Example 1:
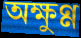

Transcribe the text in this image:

অক্ষুণ্ণ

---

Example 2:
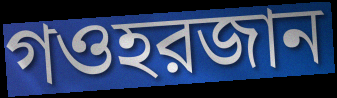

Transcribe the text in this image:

গওহরজান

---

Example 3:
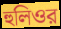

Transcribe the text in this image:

হুলিওর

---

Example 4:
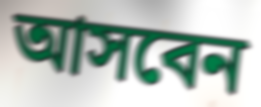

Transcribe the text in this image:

আসবেন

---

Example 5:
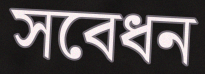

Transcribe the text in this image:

সবেধন